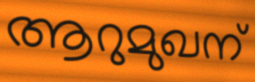
ആറുമുഖന്